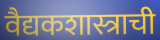
वैद्यकशास्त्राची